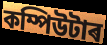
কম্পিউটাৰ